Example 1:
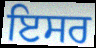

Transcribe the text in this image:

ਇਸਰ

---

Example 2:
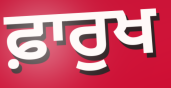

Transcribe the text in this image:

ਫ਼ਾਰੁਖ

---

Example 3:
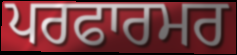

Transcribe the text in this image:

ਪਰਫਾਰਮਰ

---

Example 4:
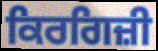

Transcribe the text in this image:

ਕਿਰਗਿਜ਼ੀ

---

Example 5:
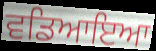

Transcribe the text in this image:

ਵਡਿਆਇਆ